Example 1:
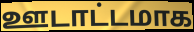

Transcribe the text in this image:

ஊடாட்டமாக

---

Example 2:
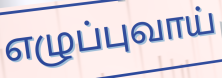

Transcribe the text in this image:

எழுப்புவாய்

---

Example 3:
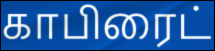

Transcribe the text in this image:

காபிரைட்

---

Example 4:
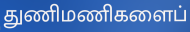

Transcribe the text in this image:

துணிமணிகளைப்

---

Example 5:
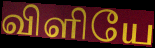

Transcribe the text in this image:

விளியே